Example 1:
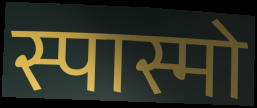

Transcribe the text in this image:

स्पास्मो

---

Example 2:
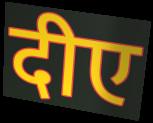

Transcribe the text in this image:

दीए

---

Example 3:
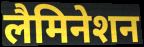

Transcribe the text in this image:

लैमिनेशन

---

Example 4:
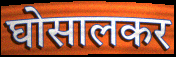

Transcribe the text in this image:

घोसालकर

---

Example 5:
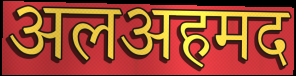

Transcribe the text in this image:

अलअहमद